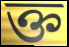
ক্ত